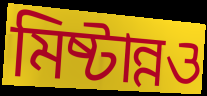
মিষ্টান্নও